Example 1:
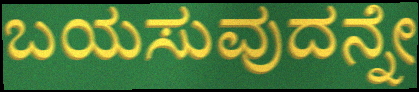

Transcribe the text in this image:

ಬಯಸುವುದನ್ನೇ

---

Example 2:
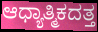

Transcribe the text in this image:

ಆಧ್ಯಾತ್ಮಿಕದತ್ತ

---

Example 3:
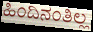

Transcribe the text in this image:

ಹಿಂದಿನಂತಿಲ್ಲ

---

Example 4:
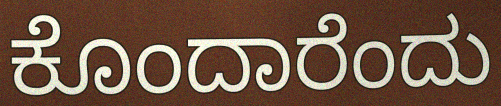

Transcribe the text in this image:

ಕೊಂದಾರೆಂದು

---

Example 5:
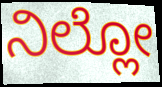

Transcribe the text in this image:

ನಿಲ್ಲೋ